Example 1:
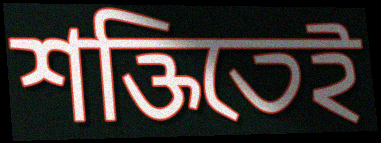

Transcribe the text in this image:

শক্তিতেই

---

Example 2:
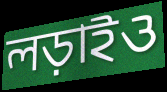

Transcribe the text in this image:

লড়াইও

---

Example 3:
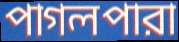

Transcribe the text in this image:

পাগলপারা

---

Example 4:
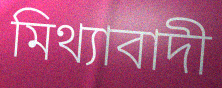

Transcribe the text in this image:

মিথ্যাবাদী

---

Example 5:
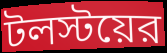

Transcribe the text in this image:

টলস্টয়ের